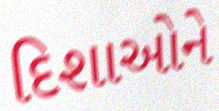
દિશાઓને